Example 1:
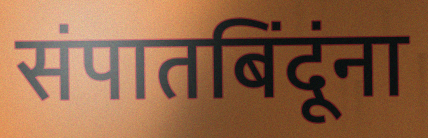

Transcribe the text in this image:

संपातबिंदूंना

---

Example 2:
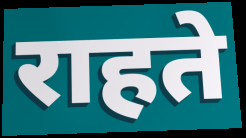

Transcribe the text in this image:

राहते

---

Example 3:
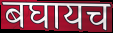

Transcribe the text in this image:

बघायच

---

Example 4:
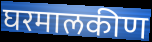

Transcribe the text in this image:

घरमालकीण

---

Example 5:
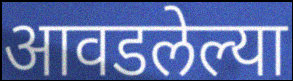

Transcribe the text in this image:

आवडलेल्या